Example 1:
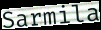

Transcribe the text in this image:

Sarmila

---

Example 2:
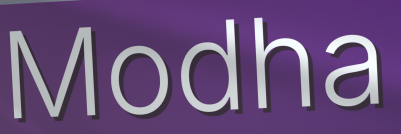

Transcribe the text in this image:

Modha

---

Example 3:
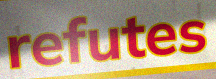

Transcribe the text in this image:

refutes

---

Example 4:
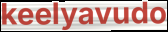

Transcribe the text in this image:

keelyavudo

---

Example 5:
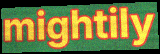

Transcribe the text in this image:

mightily